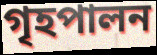
গৃহপালন